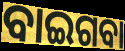
ବାଇଗବା